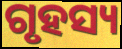
ଗୃହସ୍ୟ